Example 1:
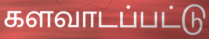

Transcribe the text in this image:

களவாடப்பட்டு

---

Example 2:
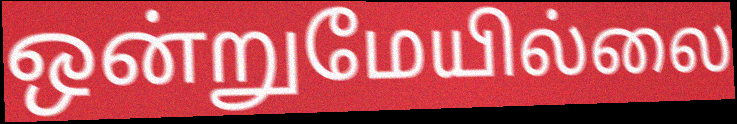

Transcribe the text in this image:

ஒன்றுமேயில்லை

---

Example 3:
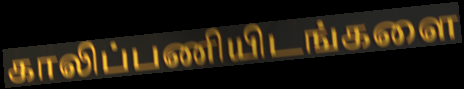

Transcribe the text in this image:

காலிப்பணியிடங்களை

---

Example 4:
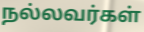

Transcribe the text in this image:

நல்லவர்கள்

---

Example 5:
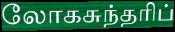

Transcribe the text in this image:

லோகசுந்தரிப்